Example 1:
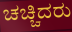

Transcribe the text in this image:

ಚಚ್ಚಿದರು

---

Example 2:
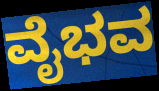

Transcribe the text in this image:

ವೈಭವ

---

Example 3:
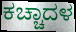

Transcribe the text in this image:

ಕಚ್ಚಾದಳ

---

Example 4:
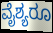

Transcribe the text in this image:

ವೈಶ್ಯರೂ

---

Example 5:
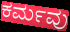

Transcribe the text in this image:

ಕರ್ಮವು